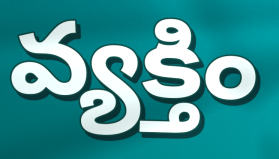
వ్యక్తిం